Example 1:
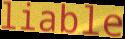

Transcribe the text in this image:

liable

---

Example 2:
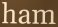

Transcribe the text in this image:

ham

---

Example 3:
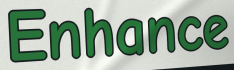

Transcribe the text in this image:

Enhance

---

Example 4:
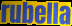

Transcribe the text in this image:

rubella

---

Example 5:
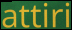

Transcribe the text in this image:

attiri